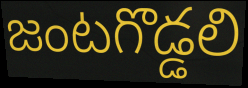
జంటగొడ్డలి